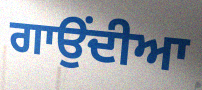
ਗਾਉਂਦੀਆ